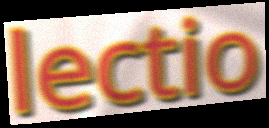
lectio